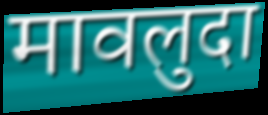
मावलुदा